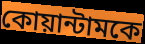
কোয়ান্টামকে